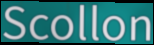
Scollon